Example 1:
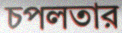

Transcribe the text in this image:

চপলতার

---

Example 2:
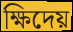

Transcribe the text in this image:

ক্ষিদেয়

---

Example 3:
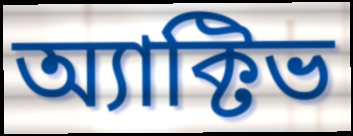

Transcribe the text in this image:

অ্যাক্টিভ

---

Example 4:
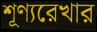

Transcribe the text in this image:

শূণ্যরেখার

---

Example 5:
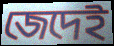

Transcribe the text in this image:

জেদেই